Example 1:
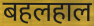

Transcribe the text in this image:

बहलहाल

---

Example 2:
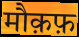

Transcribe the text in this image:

मौक़फ़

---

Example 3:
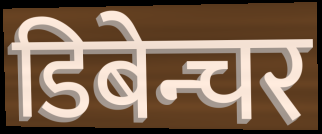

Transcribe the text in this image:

डिबेन्चर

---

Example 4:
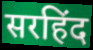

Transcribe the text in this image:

सरहिंद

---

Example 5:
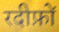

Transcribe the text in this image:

रदीफ़ों